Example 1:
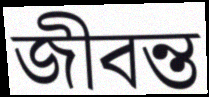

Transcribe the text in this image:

জীবন্ত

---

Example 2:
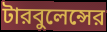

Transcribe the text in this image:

টারবুলেন্সের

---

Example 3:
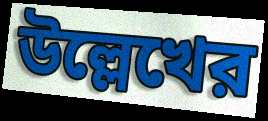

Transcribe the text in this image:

উল্লেখের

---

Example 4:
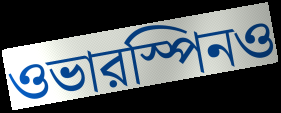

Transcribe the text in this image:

ওভারস্পিনও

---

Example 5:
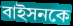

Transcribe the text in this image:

বাইসনকে